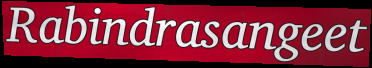
Rabindrasangeet